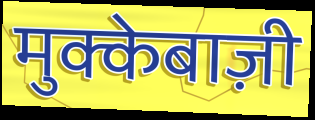
मुक्केबाज़ी